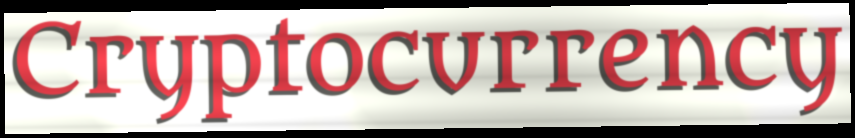
Cryptocurrency